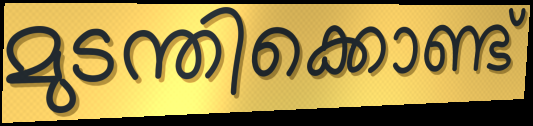
മുടന്തിക്കൊണ്ട്